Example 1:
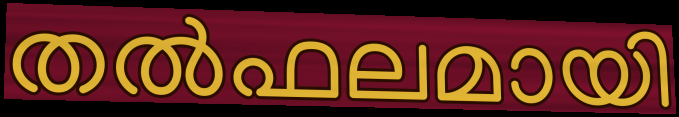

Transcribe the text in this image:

തൽഫലമായി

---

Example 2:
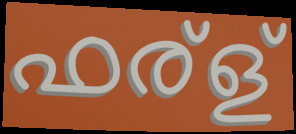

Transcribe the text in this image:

ഫര്ള്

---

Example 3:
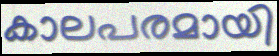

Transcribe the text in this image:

കാലപരമായി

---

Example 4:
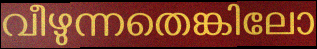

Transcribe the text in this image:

വീഴുന്നതെങ്കിലോ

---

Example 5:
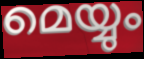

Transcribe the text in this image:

മെയ്യും